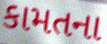
કામતના